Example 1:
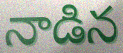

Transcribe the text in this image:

నాడిన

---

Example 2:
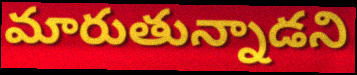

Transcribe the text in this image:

మారుతున్నాడని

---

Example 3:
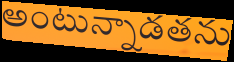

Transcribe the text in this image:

అంటున్నాడతను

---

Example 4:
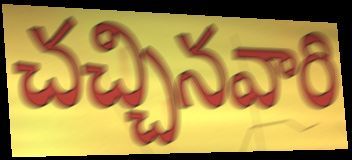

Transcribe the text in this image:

చచ్చినవారి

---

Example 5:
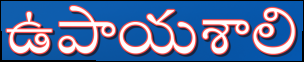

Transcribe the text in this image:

ఉపాయశాలి